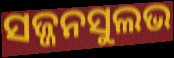
ସଜ୍ଜନସୁଲଭ